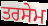
ਤਰਸੇਮ